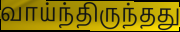
வாய்ந்திருந்தது